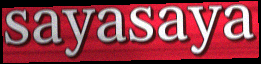
sayasaya